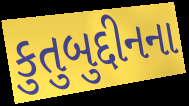
કુતુબુદ્દીનના